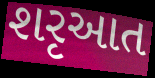
શરૃઆત